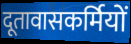
दूतावासकर्मियों